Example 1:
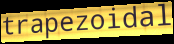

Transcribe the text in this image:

trapezoidal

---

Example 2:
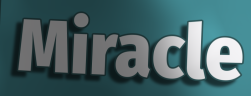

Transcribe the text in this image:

Miracle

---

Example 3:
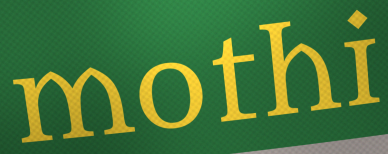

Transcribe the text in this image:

mothi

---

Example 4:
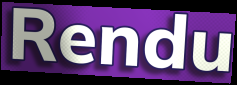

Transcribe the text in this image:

Rendu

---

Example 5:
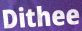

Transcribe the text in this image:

Dithee